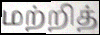
மற்றித்